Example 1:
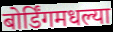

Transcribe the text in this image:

बोर्डिंगमधल्या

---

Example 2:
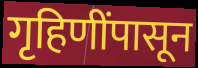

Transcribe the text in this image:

गृहिणींपासून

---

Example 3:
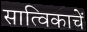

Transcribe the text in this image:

सात्विकाचें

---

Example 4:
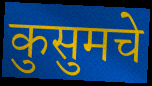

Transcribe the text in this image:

कुसुमचे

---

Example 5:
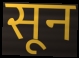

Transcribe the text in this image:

सून